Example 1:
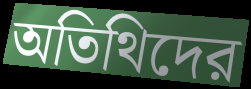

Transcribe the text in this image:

অতিথিদের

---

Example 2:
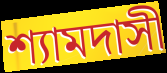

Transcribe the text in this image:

শ্যামদাসী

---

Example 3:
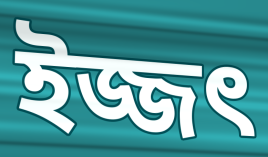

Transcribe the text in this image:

ইজ্জৎ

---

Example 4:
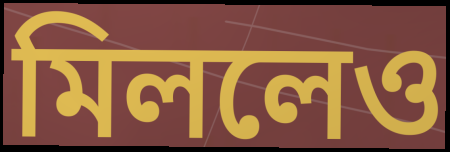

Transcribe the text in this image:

মিললেও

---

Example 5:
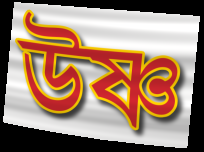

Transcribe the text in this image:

উষ্ণ